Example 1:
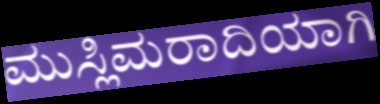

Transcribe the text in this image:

ಮುಸ್ಲಿಮರಾದಿಯಾಗಿ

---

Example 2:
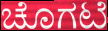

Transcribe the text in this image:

ಚೊಗಟೆ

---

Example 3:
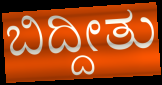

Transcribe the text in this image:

ಬಿದ್ದೀತು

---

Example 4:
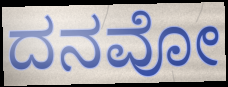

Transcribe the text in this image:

ದನವೋ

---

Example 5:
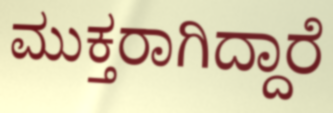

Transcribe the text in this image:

ಮುಕ್ತರಾಗಿದ್ದಾರೆ